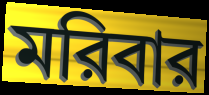
মরিবার